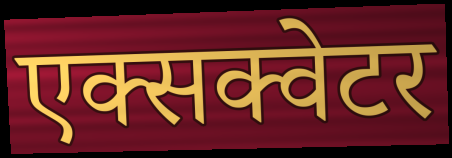
एक्सक्वेटर